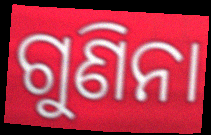
ଗୁଣିନା